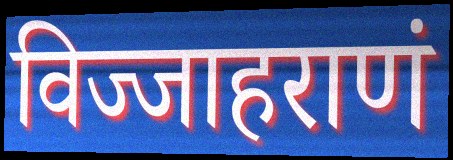
विज्जाहराणं